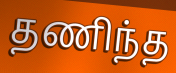
தணிந்த